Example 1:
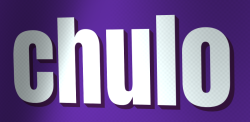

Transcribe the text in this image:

chulo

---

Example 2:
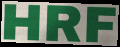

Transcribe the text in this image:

HRF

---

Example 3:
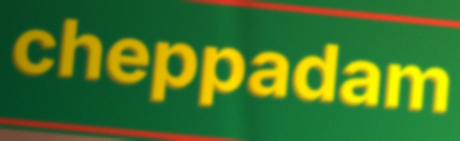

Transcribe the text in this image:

cheppadam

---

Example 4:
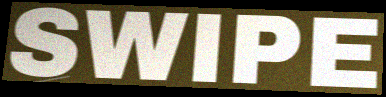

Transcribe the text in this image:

SWIPE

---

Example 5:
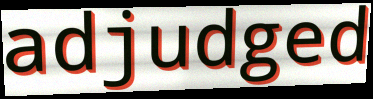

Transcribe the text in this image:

adjudged